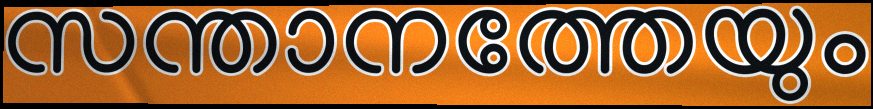
സന്താനത്തേയും